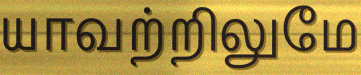
யாவற்றிலுமே